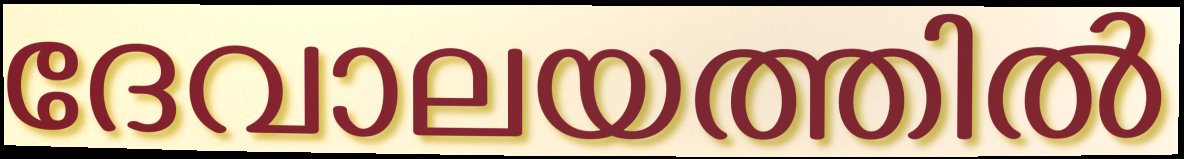
ദേവാലയത്തിൽ